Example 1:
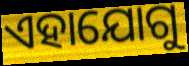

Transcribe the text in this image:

ଏହାଯୋଗୁ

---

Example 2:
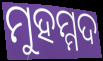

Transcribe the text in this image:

ମୁହମ୍ମଦ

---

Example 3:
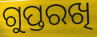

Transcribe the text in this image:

ଗୁପ୍ତରଖି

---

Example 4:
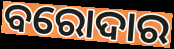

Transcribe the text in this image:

ବରୋଦାର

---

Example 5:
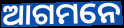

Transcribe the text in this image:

ଆଗମନେ